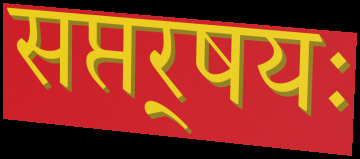
सप्तर्षयः